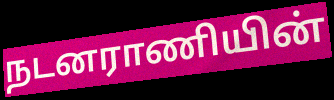
நடனராணியின்